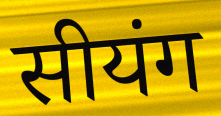
सीयंग